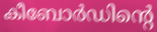
കീബോർഡിന്റെ